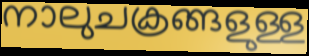
നാലുചക്രങ്ങളുള്ള